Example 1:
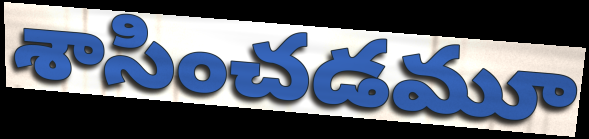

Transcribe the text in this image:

శాసించడమూ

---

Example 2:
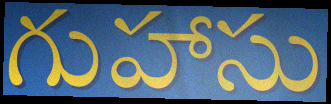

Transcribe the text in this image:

గుహాసు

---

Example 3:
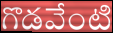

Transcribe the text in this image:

గొడవేంటి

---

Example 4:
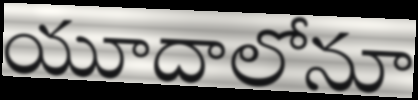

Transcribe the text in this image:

యూదాలోనూ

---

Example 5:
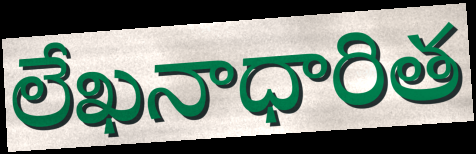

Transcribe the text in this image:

లేఖనాధారిత